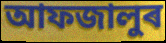
আফজালুৰ